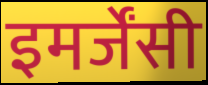
इमर्जेंसी